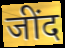
जींद